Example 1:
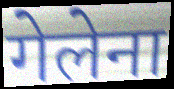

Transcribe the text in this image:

गेलेना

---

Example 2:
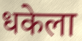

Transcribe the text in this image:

धकेला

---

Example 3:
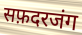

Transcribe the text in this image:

सफ़दरजंग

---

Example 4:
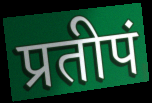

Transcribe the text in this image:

प्रतीपं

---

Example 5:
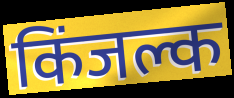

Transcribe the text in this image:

किंजल्क